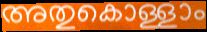
അതുകൊള്ളാം